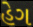
હેગ